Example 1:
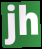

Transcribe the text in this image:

jh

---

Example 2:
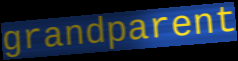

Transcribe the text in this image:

grandparent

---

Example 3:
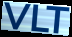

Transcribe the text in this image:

VLT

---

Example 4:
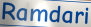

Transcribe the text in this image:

Ramdari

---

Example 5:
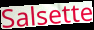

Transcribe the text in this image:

Salsette